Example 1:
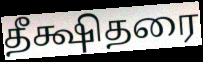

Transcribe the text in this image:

தீக்ஷிதரை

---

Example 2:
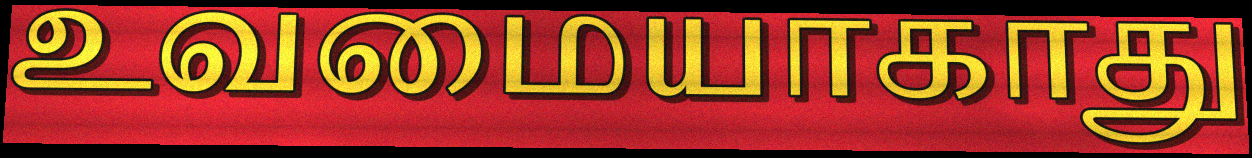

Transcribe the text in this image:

உவமையாகாது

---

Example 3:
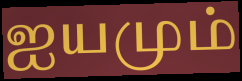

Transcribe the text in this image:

ஐயமும்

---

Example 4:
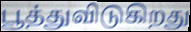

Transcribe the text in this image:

பூத்துவிடுகிறது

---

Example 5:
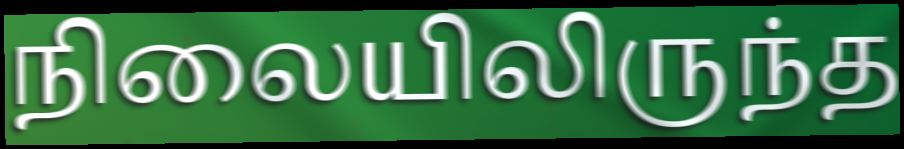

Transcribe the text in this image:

நிலையிலிருந்த